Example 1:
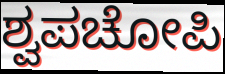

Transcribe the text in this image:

ಶ್ವಪಚೋಪಿ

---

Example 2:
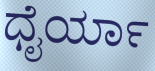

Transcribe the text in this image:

ಧೈರ್ಯಾ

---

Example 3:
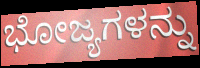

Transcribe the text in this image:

ಭೋಜ್ಯಗಳನ್ನು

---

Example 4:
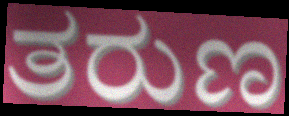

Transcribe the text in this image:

ತರುಣ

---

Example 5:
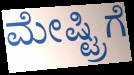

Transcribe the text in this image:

ಮೇಷ್ಟ್ರಿಗೆ